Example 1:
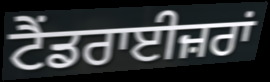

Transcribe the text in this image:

ਟੈਂਡਰਾਈਜ਼ਰਾਂ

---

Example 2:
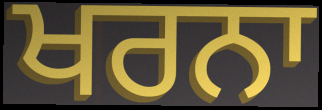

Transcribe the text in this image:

ਖਰਨਾ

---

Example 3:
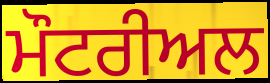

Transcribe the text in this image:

ਮੌਟਰੀਅਲ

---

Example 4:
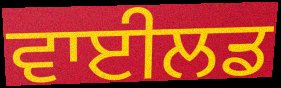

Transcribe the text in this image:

ਵਾਈਲਡ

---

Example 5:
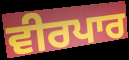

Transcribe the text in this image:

ਵੀਰਪਾਰ